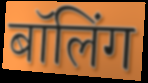
बॉलिंग